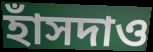
হাঁসদাও